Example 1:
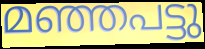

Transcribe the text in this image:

മഞ്ഞപട്ടു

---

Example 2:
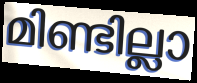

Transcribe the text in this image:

മിണ്ടില്ലാ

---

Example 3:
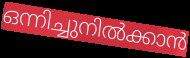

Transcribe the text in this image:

ഒന്നിച്ചുനിൽക്കാൻ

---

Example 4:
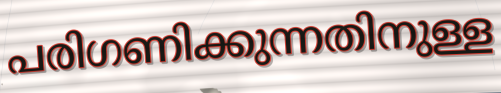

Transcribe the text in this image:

പരിഗണിക്കുന്നതിനുള്ള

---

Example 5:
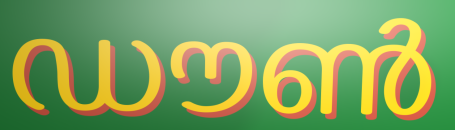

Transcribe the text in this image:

ഡൗൺ